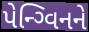
પેન્ગ્વિનને